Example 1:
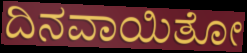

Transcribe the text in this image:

ದಿನವಾಯಿತೋ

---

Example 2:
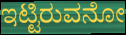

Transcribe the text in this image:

ಇಟ್ಟಿರುವನೋ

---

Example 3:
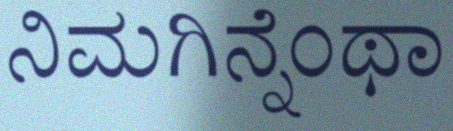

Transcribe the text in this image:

ನಿಮಗಿನ್ನೆಂಥಾ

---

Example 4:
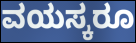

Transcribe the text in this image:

ವಯಸ್ಕರೂ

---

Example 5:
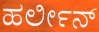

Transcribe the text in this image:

ಹರ್ಲೀನ್